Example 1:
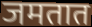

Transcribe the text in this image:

जमतात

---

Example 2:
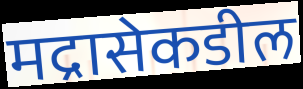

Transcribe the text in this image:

मद्रासेकडील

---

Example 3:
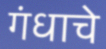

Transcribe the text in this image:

गंधाचे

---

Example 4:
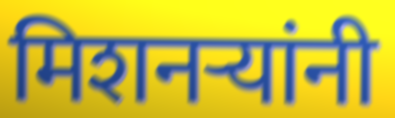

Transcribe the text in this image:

मिशनर्‍यांनी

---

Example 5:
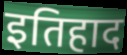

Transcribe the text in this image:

इतिहाद